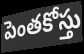
పెంతకోస్తు